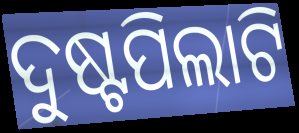
ଦୁଷ୍ଟପିଲାଟି